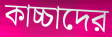
কাচ্চাদের